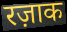
रज़ाक